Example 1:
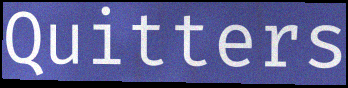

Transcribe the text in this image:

Quitters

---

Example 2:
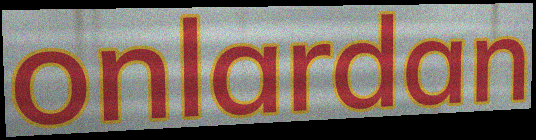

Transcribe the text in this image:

onlardan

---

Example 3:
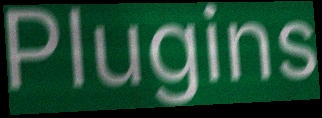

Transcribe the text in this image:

Plugins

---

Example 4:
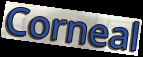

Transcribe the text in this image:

Corneal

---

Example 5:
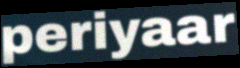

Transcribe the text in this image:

periyaar